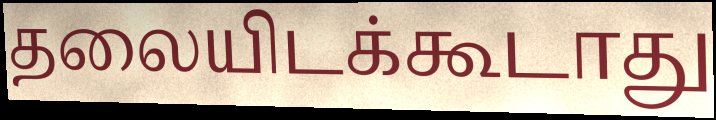
தலையிடக்கூடாது